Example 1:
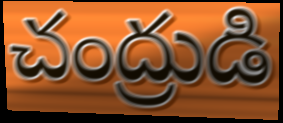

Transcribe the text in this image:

చంద్రుడి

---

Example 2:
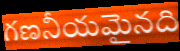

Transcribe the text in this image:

గణనీయమైనది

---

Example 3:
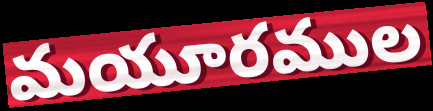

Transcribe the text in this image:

మయూరముల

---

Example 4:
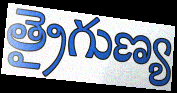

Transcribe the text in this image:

త్రైగుణ్య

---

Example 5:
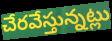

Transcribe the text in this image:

చేరవేస్తున్నట్లు